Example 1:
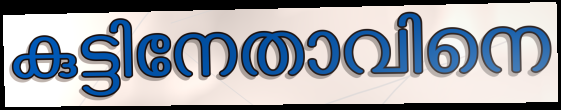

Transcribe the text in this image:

കുട്ടിനേതാവിനെ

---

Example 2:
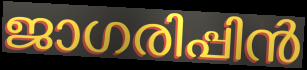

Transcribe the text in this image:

ജാഗരിപ്പിൻ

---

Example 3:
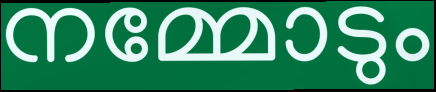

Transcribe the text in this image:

നമ്മോടും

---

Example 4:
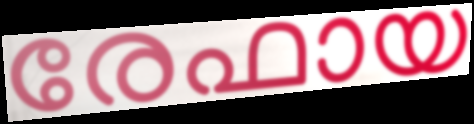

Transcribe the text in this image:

രേഫായ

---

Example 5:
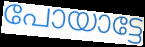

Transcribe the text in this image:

പോയാട്ടേ